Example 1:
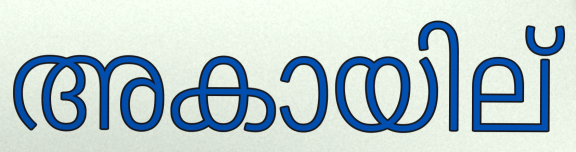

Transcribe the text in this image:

അകായില്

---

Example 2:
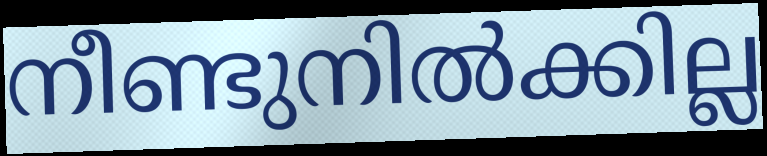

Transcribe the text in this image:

നീണ്ടുനിൽക്കില്ല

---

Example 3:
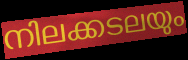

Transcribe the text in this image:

നിലക്കടലയും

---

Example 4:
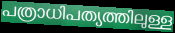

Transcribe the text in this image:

പത്രാധിപത്യത്തിലുള്ള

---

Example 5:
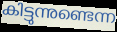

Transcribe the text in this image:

കിട്ടുന്നുണ്ടെന്ന